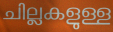
ചില്ലകളുള്ള